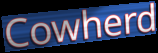
Cowherd